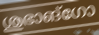
ശുഭാങ്ഗോ